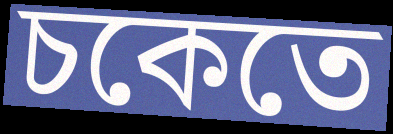
চকেতে